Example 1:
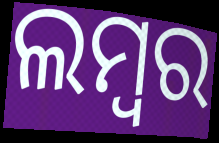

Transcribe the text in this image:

ଲମ୍ୱର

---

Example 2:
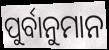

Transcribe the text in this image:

ପୁର୍ବାନୁମାନ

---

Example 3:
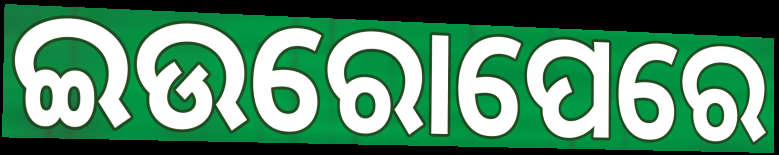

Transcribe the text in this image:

ଇଉରୋପେରେ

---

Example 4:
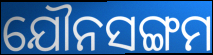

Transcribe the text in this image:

ଯୌନସଙ୍ଗମ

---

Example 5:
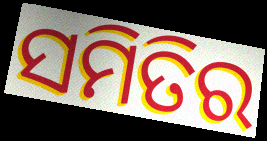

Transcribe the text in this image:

ସମିତିର